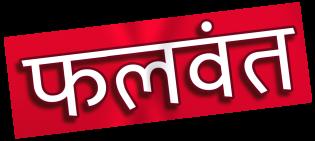
फलवंत